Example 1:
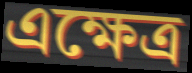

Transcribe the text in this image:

এক্ষেত্র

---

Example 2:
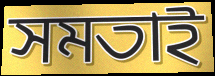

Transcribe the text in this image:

সমতাই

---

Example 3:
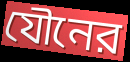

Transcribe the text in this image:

যৌনের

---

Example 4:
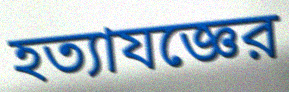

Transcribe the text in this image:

হত্যাযজ্ঞের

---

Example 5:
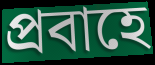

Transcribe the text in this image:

প্রবাহে